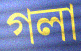
গলা